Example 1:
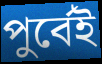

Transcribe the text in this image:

পুৰ্বেই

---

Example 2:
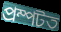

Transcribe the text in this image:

প্ৰম্পটত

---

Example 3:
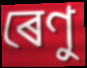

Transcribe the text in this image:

ৰেণু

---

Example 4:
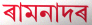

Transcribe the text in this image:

ৰামনাদৰ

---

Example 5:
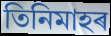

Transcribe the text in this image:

তিনিমাহৰ